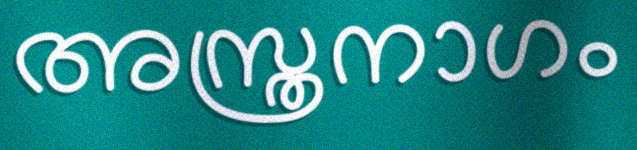
അസ്ത്രനാഗം